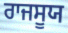
ਰਾਜਸੂਯ